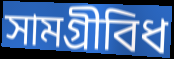
সামগ্ৰীবিধ